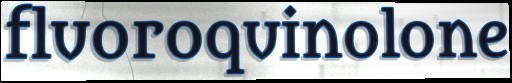
fluoroquinolone